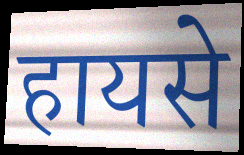
हायसे